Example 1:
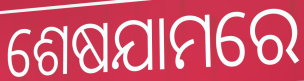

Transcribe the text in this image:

ଶେଷଯାମରେ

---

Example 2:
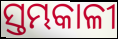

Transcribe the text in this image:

ସ୍ତମ୍ଭକାଳୀ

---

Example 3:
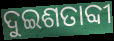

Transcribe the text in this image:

ଦୁଇଶତାବ୍ଦୀ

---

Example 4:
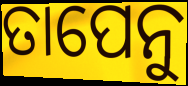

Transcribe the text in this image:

ତାପେନୁ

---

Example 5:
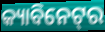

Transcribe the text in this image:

କ୍ୟାବିନେଟ୍‌ର